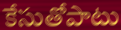
కేసుతోపాటు